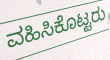
ವಹಿಸಿಕೊಟ್ಟರು